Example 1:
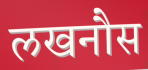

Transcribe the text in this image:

लखनौस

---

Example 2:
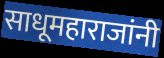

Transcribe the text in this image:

साधूमहाराजांनी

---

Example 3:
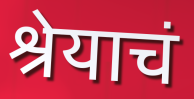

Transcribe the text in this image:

श्रेयाचं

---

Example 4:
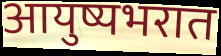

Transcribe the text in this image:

आयुष्यभरात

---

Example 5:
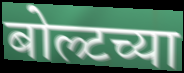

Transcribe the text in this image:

बोल्टच्या